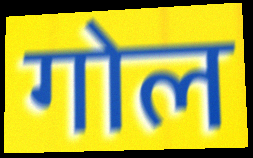
गोल